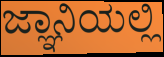
ಜ್ಞಾನಿಯಲ್ಲಿ